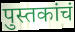
पुस्तकांचं